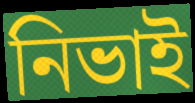
নিভাই